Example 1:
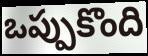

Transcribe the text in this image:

ఒప్పుకొంది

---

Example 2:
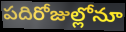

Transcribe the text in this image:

పదిరోజుల్లోనూ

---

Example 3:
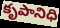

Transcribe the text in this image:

కృపానిధి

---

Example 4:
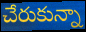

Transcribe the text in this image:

చేరుకున్నా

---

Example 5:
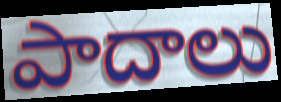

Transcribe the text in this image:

పాదాలు